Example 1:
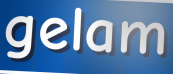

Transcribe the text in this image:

gelam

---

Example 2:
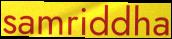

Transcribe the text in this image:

samriddha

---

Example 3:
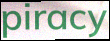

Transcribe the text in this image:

piracy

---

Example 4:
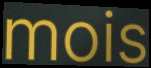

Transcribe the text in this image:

mois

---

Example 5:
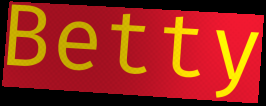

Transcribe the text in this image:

Betty